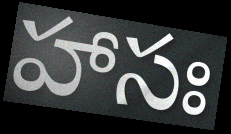
హాసః